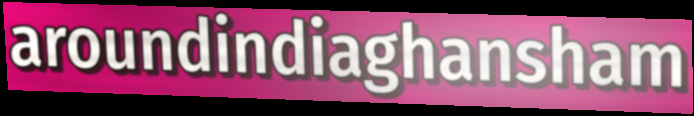
aroundindiaghansham